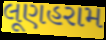
લૂણહરામ